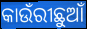
କାଉଁରୀଛୁଆଁ